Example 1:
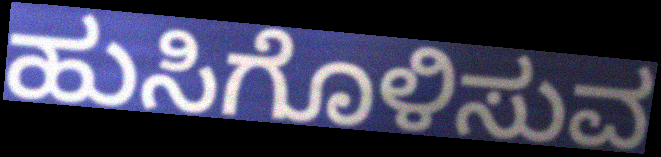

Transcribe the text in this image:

ಹುಸಿಗೊಳಿಸುವ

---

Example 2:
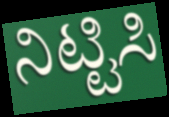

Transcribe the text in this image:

ನಿಟ್ಟಿಸಿ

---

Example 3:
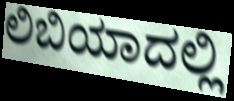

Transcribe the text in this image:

ಲಿಬಿಯಾದಲ್ಲಿ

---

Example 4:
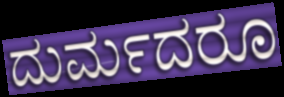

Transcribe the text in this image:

ದುರ್ಮದರೂ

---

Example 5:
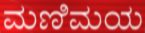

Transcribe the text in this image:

ಮಣಿಮಯ